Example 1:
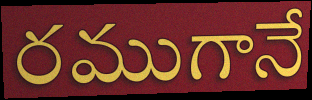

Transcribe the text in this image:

రముగానే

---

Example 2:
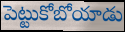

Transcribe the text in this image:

పెట్టుకోబోయాడు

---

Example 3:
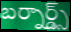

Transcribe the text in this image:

బర్నార్డ్స్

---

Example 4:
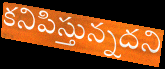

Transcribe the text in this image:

కనిపిస్తున్నదని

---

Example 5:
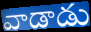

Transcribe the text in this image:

వాడాడు